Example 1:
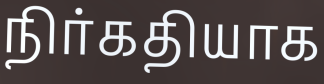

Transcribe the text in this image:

நிர்கதியாக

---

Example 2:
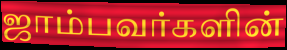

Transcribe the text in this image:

ஜாம்பவர்களின்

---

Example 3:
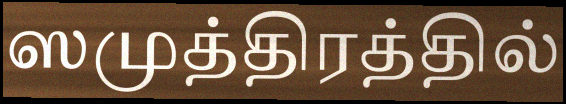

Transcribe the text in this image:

ஸமுத்திரத்தில்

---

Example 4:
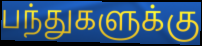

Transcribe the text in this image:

பந்துகளுக்கு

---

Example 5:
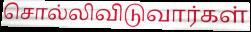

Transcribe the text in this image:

சொல்லிவிடுவார்கள்